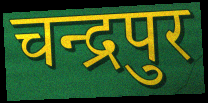
चन्द्रपुर